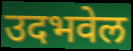
उदभवेल